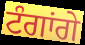
ਟੰਗਾਂਗੇ